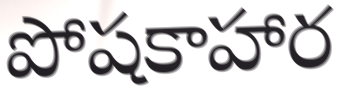
పోషకాహార